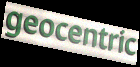
geocentric